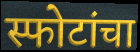
स्फोटांचा